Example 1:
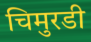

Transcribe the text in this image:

चिमुरडी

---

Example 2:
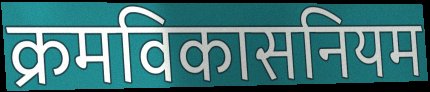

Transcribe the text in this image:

क्रमविकासनियम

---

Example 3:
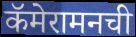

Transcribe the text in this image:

कॅमेरामनची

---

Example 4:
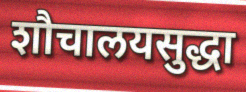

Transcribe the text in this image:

शौचालयसुद्धा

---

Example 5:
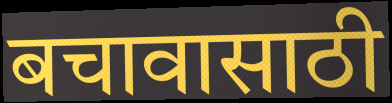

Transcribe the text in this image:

बचावासाठी